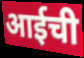
आईची